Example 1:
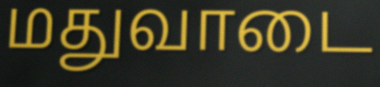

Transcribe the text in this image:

மதுவாடை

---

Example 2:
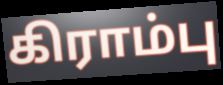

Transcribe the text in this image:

கிராம்பு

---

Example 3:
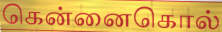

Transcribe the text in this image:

கென்னைகொல்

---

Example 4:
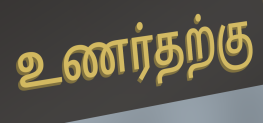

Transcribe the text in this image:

உணர்தற்கு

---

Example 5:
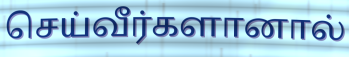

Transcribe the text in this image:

செய்வீர்களானால்